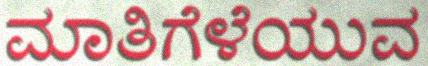
ಮಾತಿಗೆಳೆಯುವ